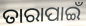
ତାରାପାଇଁ